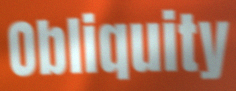
Obliquity